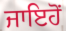
ਜਾਇਹੋਂ